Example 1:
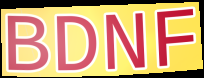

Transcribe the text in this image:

BDNF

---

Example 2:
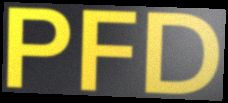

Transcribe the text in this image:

PFD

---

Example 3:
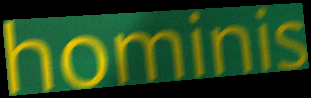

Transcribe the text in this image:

hominis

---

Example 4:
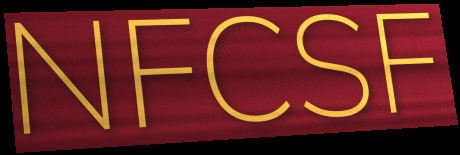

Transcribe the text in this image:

NFCSF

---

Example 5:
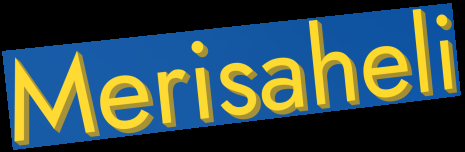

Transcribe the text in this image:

Merisaheli